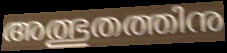
അത്ഭുതത്തിനു